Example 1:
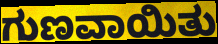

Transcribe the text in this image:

ಗುಣವಾಯಿತು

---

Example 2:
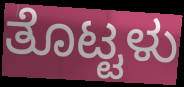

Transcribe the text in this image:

ತೊಟ್ಟಳು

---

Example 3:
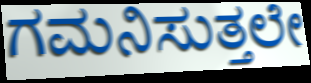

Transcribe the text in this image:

ಗಮನಿಸುತ್ತಲೇ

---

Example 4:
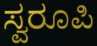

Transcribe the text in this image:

ಸ್ವರೂಪಿ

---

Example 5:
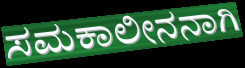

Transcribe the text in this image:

ಸಮಕಾಲೀನನಾಗಿ